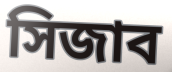
সিজাব